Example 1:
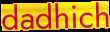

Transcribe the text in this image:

dadhich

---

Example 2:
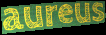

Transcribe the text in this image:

aureus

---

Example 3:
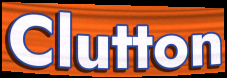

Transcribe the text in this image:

Clutton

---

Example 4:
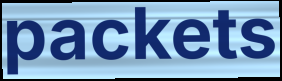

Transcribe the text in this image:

packets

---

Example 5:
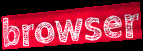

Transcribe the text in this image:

browser